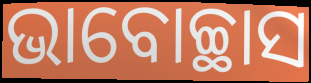
ଭାବୋଚ୍ଛାସ